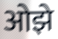
ओझे